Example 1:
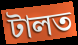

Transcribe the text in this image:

টালত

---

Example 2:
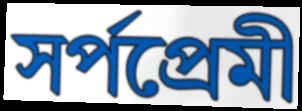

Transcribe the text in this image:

সর্পপ্রেমী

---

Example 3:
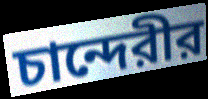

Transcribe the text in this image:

চান্দেরীর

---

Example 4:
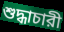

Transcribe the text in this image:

শুদ্ধাচারী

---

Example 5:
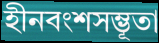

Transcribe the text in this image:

হীনবংশসম্ভূতা